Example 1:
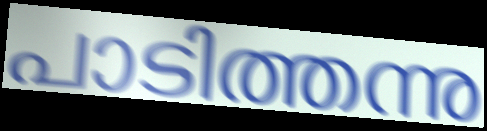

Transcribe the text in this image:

പാടിത്തന്നു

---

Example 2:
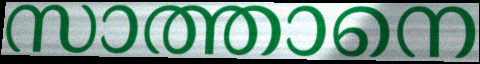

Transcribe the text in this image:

സാത്താനെ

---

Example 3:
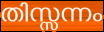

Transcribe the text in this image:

തിസ്സന്നം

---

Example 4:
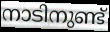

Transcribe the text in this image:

നാടിനുണ്ട്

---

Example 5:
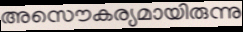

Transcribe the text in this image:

അസൌകര്യമായിരുന്നു